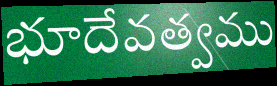
భూదేవత్వము